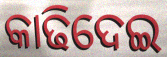
କାଢିଦେଇ